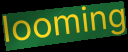
looming